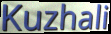
Kuzhali